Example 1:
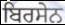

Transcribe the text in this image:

ਬਿਰਸੇਨ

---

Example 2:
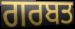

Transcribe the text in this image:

ਗਰਬਤ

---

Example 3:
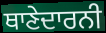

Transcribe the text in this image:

ਥਾਣੇਦਾਰਨੀ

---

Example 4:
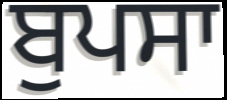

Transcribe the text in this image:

ਬੁਪਸਾ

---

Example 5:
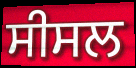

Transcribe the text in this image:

ਸੀਸਲ